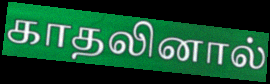
காதலினால்